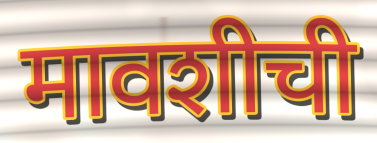
मावशीची